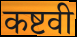
कष्टवी